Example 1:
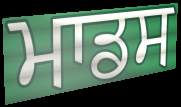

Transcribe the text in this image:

ਮਾਡਸ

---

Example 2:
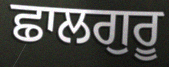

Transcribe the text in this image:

ਛਾਲਗੁਰੂ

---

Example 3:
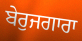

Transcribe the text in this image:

ਬੇਰੁਜਗਾਰਾ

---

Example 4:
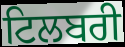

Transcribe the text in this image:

ਟਿਲਬਰੀ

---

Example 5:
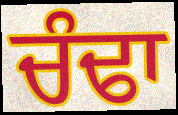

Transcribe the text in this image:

ਚੰਢਾ